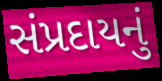
સંપ્રદાયનું